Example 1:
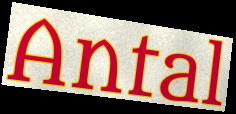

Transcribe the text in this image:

Antal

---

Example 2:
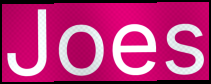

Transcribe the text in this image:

Joes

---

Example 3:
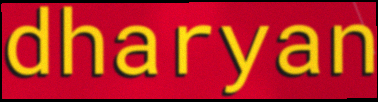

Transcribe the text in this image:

dharyan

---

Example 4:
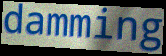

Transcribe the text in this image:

damming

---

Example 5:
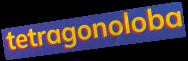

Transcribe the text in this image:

tetragonoloba